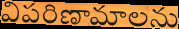
విపరిణామాలను